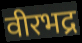
वीरभद्र